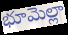
భూమెల్లా